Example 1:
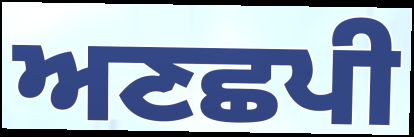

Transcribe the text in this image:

ਅਣਛਪੀ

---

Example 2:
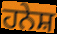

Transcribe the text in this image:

ਹਨੇਸ਼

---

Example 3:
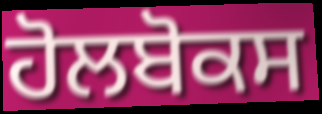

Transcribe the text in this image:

ਹੋਲਬੋਕਸ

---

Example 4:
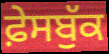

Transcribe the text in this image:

ਫ਼ੇਸਬੁੱਕ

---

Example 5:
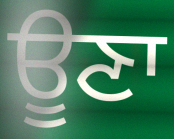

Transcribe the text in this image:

ਊਣਾ